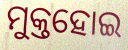
ମୁକ୍ତହୋଇ